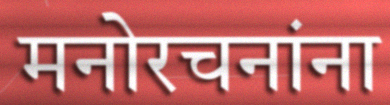
मनोरचनांना